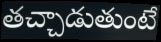
తచ్చాడుతుంటే